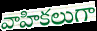
వాహికలుగా